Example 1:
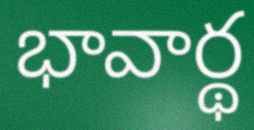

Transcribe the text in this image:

భావార్థ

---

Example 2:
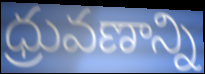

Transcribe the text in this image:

ధ్రువణాన్ని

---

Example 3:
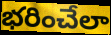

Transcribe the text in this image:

భరించేలా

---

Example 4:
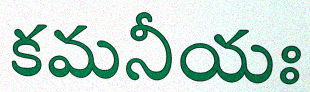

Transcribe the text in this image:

కమనీయః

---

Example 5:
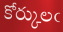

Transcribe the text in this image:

కోర్కులఁ